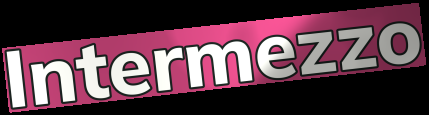
Intermezzo